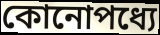
কোনোপধ্যে